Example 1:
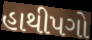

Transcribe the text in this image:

હાથીપગો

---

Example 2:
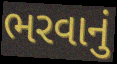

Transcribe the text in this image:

ભરવાનું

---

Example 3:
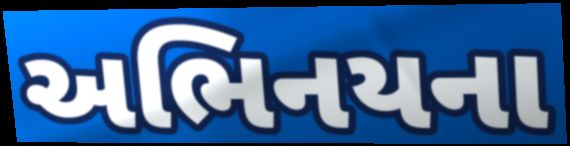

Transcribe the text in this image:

અભિનયના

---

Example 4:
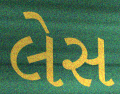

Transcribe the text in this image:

લેસ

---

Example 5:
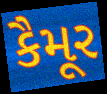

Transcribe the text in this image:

કૈમૂર